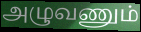
அழுவணும்